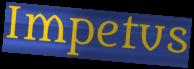
Impetus